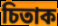
চিতাক